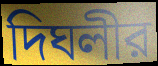
দিঘলীর